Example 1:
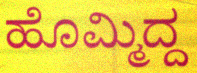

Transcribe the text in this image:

ಹೊಮ್ಮಿದ್ದ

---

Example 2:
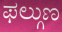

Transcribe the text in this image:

ಫಲ್ಗುಣ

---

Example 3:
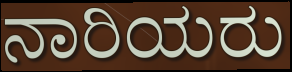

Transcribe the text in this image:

ನಾರಿಯರು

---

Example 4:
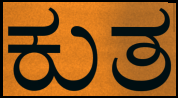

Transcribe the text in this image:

ಕುತ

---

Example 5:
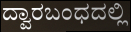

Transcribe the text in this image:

ದ್ವಾರಬಂಧದಲ್ಲಿ